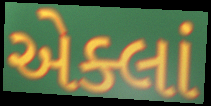
એક્લાં